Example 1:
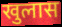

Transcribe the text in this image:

खुलास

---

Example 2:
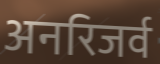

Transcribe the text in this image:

अनरिजर्व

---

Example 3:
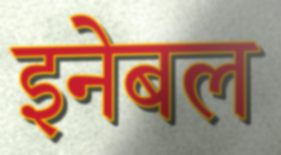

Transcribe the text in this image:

इनेबल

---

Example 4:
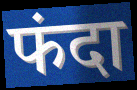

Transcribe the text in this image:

फंदा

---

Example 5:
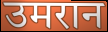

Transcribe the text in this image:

उमरान